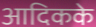
आदिकके